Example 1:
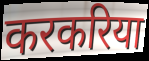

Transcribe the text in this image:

करकरिया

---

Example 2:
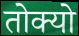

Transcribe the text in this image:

तोक्यो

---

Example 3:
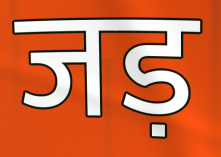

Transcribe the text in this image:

जड़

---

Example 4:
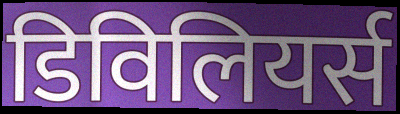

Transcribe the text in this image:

डिविलियर्स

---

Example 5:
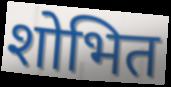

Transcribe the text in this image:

शोभित